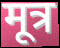
मूत्र